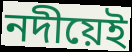
নদীয়েই